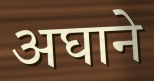
अघाने